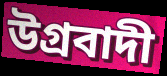
উগ্রবাদী